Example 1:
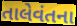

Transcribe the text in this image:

તાલેવંતના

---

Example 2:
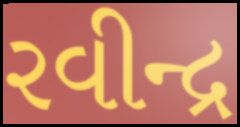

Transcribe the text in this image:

રવીન્દ્ર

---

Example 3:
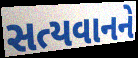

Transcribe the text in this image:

સત્યવાનને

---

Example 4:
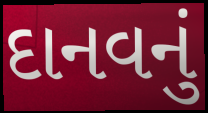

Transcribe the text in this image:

દાનવનું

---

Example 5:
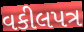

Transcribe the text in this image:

વકીલપત્ર